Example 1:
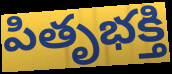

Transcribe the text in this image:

పితృభక్తి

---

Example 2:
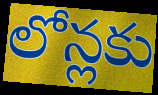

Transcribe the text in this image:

లోన్లకు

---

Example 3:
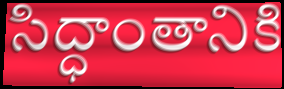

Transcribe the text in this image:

సిద్ధాంతానికి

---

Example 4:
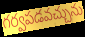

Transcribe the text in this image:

గర్వపడవచ్చును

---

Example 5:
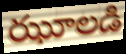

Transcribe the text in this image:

ఝూలడి